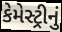
કેમેસ્ટ્રીનું